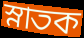
স্নাতক